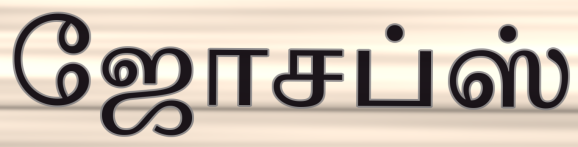
ஜோசப்ஸ்